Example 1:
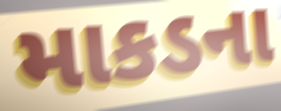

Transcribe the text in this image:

માકડના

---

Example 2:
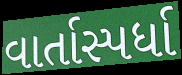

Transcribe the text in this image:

વાર્તાસ્પર્ધા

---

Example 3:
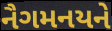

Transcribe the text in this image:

નૈગમનયને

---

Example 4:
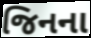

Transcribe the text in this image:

જિનના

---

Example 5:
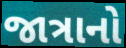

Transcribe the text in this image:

જાત્રાનો